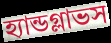
হ্যান্ডগ্লাভস